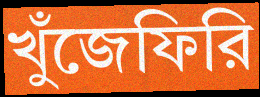
খুঁজেফিরি